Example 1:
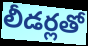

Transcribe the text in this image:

లీడర్లతో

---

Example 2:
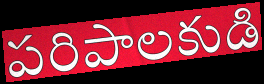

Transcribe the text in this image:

పరిపాలకుడి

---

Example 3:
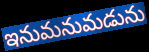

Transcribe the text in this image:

ఇనుమనుమడును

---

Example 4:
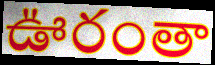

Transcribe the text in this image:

ఊరంతా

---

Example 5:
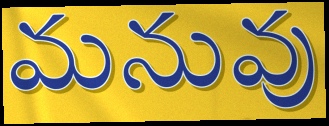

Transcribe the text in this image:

మనువు